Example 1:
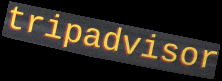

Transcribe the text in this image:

tripadvisor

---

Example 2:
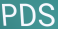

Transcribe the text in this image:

PDS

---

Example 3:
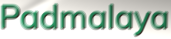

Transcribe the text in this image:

Padmalaya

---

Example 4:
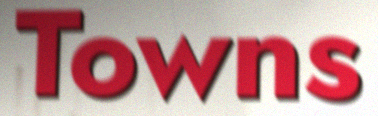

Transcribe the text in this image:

Towns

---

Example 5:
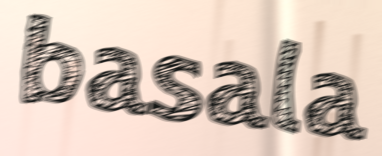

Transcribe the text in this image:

basala